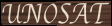
UNOSAT